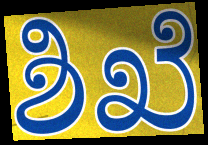
ಶಿಖೆ